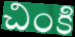
చింకి